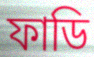
ফাডি